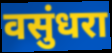
वसुंधरा